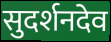
सुदर्शनदेव